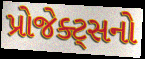
પ્રોજેક્ટ્સનો